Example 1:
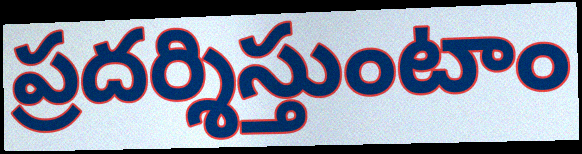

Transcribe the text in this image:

ప్రదర్శిస్తుంటాం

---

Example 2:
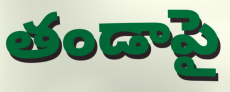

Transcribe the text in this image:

తండాపై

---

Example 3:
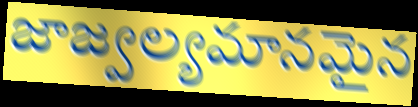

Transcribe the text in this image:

జాజ్వల్యమానమైన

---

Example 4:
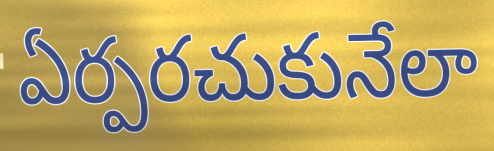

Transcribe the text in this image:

ఏర్పరచుకునేలా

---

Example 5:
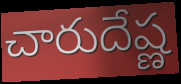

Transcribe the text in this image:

చారుదేష్ణ